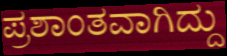
ಪ್ರಶಾಂತವಾಗಿದ್ದು